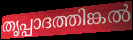
തൃപ്പാദത്തിങ്കൽ